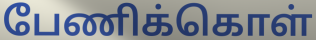
பேணிக்கொள்